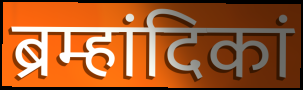
ब्रम्हांदिकां